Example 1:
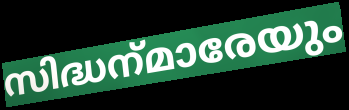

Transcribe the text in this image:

സിദ്ധന്‌മാരേയും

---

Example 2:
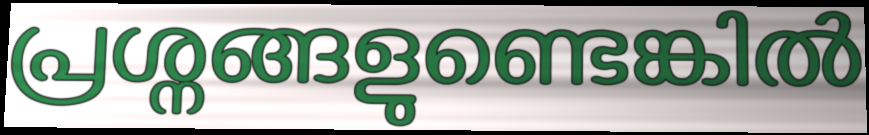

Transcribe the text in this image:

പ്രശ്നങ്ങളുണ്ടെങ്കിൽ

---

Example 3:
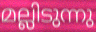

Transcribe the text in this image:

മല്ലിടുന്നു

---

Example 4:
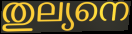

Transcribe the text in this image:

തുല്യനെ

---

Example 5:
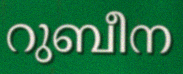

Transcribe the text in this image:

റുബീന